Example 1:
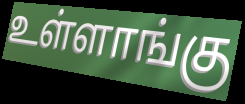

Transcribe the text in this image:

உள்ளாங்கு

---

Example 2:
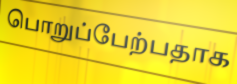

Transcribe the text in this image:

பொறுப்பேற்பதாக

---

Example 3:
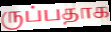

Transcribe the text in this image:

ருப்பதாக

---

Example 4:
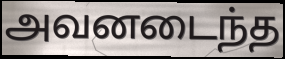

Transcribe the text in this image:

அவனடைந்த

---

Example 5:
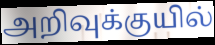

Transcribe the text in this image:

அறிவுக்குயில்